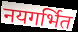
नयगर्भित